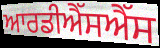
ਆਰਡੀਐੱਸਐੱਸ